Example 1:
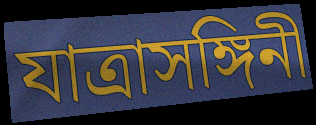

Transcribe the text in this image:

যাত্রাসঙ্গিনী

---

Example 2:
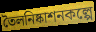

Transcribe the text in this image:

তৈলনিষ্কাশনকল্পে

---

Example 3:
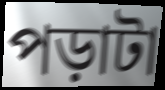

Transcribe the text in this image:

পড়াটা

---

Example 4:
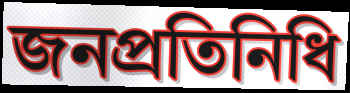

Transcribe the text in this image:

জনপ্রতিনিধি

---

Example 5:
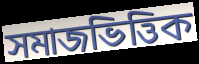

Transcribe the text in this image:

সমাজভিত্তিক